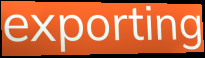
exporting